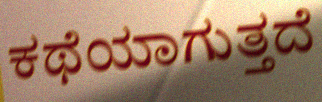
ಕಥೆಯಾಗುತ್ತದೆ